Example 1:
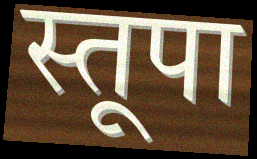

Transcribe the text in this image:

स्तूपा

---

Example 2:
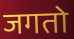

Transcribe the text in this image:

जगतो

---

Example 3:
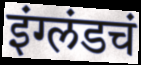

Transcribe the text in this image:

इंग्लंडचं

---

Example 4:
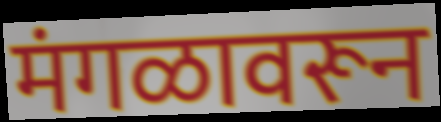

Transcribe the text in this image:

मंगळावरून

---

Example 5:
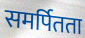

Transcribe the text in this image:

समर्पितता